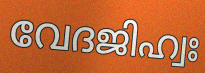
വേദജിഹ്വഃ